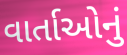
વાર્તાઓનું